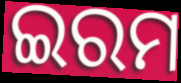
ଇରମ